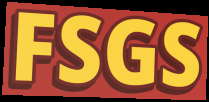
FSGS